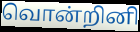
வொன்றினி